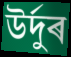
উৰ্দুৰ